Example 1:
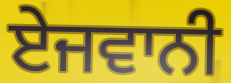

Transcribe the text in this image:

ਏਜਵਾਨੀ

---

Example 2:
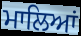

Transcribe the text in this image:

ਮਾਲਿਆਂ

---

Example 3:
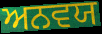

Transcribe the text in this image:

ਅਨਵਯ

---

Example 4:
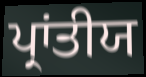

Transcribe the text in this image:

ਪ੍ਰਾਂਤੀਯ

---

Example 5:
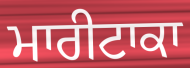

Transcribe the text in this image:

ਮਾਰੀਟਾਕਾ